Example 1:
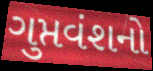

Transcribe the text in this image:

ગુપ્તવંશનો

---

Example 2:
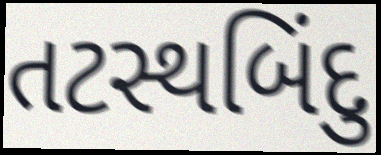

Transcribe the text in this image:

તટસ્થબિંદુ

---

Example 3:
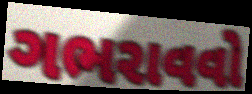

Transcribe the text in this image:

ગભરાવવો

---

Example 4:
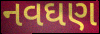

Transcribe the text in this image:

નવઘણ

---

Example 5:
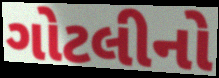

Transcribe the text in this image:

ગોટલીનો